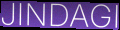
JINDAGI